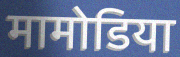
मामोडिया